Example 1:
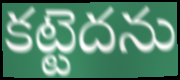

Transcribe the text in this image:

కట్టెదను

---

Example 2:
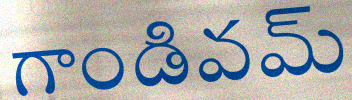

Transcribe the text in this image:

గాండివమ్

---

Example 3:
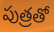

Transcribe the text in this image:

పుత్రతో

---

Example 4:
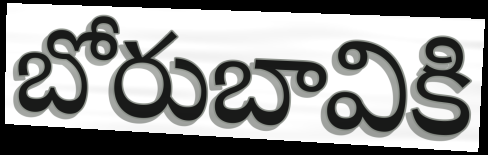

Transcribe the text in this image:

బోరుబావికి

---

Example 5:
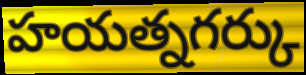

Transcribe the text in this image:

హయత్నగర్కు